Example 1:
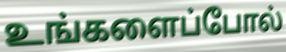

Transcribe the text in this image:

உங்களைப்போல்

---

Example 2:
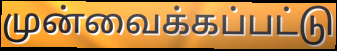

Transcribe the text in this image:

முன்வைக்கப்பட்டு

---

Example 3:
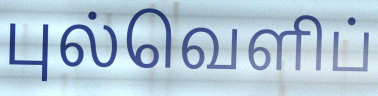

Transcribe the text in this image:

புல்வெளிப்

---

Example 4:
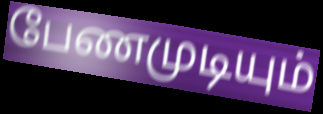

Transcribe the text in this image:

பேணமுடியும்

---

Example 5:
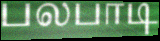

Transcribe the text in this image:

பலபாடி